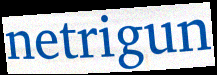
netrigun